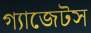
গ্যাজেটস